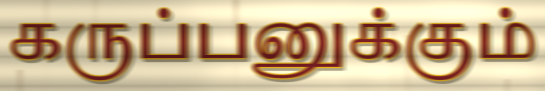
கருப்பனுக்கும்